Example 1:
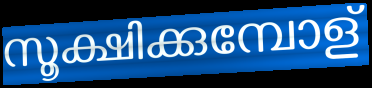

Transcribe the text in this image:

സൂക്ഷിക്കുമ്പോള്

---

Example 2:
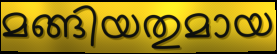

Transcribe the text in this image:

മങ്ങിയതുമായ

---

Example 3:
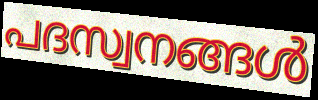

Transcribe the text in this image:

പദസ്വനങ്ങൾ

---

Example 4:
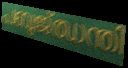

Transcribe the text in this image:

പബുജ്ഝന്തി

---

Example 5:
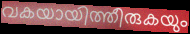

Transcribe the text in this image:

വകയായിത്തീരുകയും